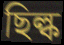
ছিল্ক